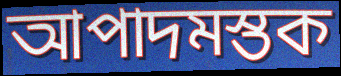
আপাদমস্তক